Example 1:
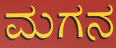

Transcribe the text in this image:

ಮಗನ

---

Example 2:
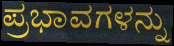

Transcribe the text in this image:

ಪ್ರಭಾವಗಳನ್ನು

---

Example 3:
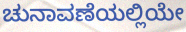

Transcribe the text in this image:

ಚುನಾವಣೆಯಲ್ಲಿಯೇ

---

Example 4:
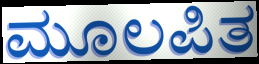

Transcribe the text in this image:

ಮೂಲಪಿತ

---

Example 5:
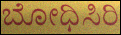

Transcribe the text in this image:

ಬೋಧಿಸಿರಿ